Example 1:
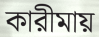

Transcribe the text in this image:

কারীমায়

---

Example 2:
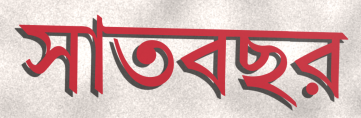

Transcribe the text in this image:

সাতবছর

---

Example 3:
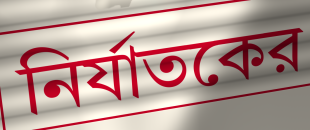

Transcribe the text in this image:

নির্যাতকের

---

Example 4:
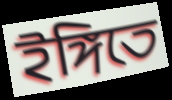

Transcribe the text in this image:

ইঙ্গিতে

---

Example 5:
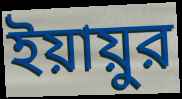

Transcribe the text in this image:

ইয়ায়ুর